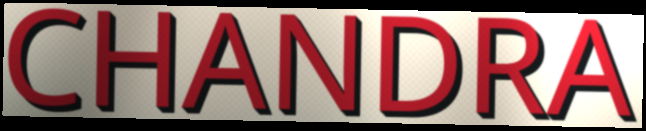
CHANDRA